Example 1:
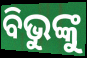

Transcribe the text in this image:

ବିଭୁଙ୍କୁ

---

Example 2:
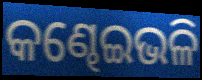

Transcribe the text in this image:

କଣ୍ଢେଇଭଳି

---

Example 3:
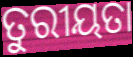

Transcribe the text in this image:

ତୁରୀୟତା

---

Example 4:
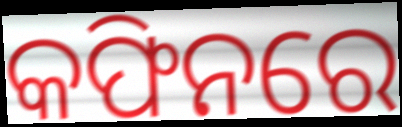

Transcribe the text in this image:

କଫିନରେ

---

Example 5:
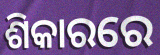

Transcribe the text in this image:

ଶିକାରରେ